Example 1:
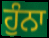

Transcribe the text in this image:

ਹੁੰਨਾ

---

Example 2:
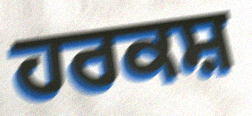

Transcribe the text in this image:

ਹਰਕਸ਼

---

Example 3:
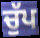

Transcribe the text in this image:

ਚੁੱਪ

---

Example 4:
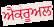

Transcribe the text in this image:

ਐਕਰੂਅਲ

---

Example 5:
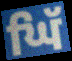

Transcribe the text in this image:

ਘਿੱ